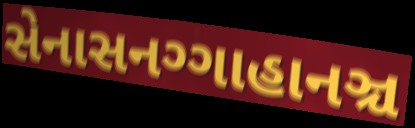
સેનાસનગ્ગાહાનઞ્ચ